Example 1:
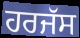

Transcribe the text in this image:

ਹਰਜੱਸ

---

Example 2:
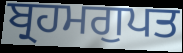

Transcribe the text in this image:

ਬ੍ਰਹਮਗੁਪਤ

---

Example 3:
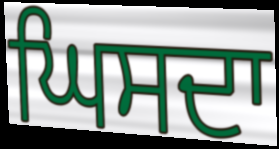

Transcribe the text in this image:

ਘਿਸਦਾ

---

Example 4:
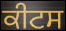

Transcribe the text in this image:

ਕੀਟਸ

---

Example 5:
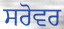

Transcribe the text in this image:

ਸਰੋਵਰ